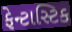
ફેન્ટાસ્ટિક